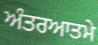
ਅੰਤਰਆਤਮੇ